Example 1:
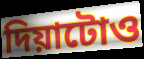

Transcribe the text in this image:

দিয়াটোও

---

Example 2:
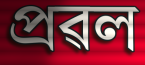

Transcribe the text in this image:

প্ৰৱল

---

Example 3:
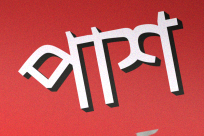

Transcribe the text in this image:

পাশ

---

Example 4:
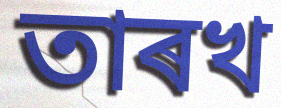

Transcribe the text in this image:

তাৰখ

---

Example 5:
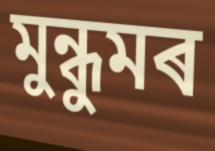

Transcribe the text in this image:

মুন্ধুমৰ